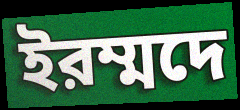
ইরম্মদে